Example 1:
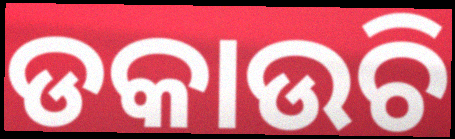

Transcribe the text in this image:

ଡକାଉଚି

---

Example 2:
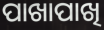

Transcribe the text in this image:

ପାଖାପାଖି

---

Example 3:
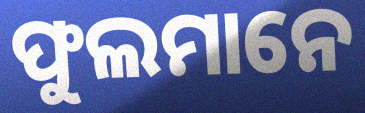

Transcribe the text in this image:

ଫୁଲମାନେ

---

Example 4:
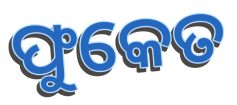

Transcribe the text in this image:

ଫୁକେତ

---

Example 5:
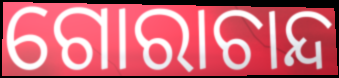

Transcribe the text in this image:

ଗୋରାଚାନ୍ଦ